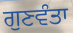
ਗੁਣਵੰਤਾ